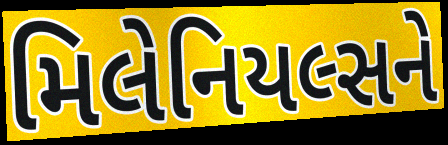
મિલેનિયલ્સને